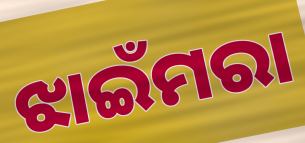
ଝାଇଁମରା